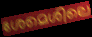
ശേമെശിലെ